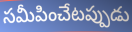
సమీపించేటప్పుడు